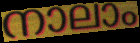
നാലാം